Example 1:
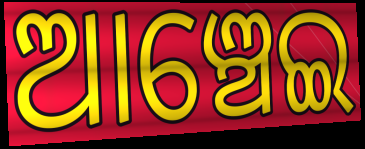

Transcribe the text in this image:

ଆଞ୍ଚେଇ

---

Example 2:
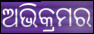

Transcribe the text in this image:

ଅଭିକ୍ରମର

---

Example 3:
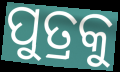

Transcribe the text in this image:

ପୁତ୍ରକୁ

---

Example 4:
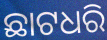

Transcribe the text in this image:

ଛାଟଧରି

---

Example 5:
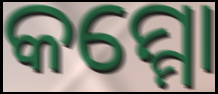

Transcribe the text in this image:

କମ୍ମୋ